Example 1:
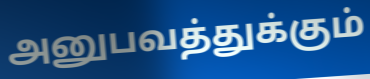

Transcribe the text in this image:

அனுபவத்துக்கும்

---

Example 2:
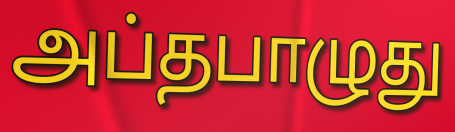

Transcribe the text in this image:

அப்தபாழுது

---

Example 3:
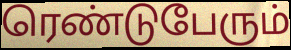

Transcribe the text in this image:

ரெண்டுபேரும்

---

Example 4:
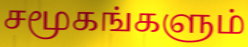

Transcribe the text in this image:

சமூகங்களும்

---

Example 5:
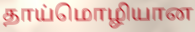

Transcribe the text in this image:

தாய்மொழியான